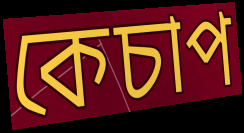
কেচাপ